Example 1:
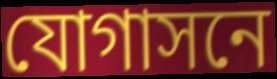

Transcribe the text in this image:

যোগাসনে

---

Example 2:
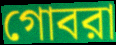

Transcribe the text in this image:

গোবরা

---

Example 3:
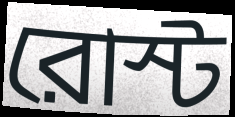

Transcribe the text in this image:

রোস্ট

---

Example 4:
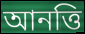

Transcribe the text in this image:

আনত্তি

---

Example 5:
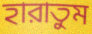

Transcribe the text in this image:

হারাতুম